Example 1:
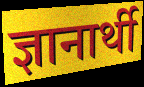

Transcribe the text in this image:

ज्ञानार्थी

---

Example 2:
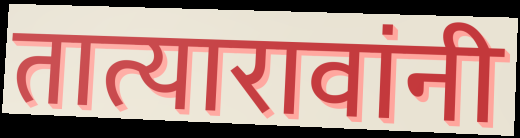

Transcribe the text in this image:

तात्यारावांनी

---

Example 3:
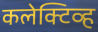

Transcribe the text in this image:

कलेक्टिव्ह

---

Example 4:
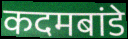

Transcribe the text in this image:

कदमबांडे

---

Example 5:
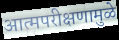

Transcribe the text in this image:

आत्मपरीक्षणामुळे